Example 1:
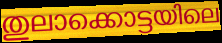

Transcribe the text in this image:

തുലാക്കൊട്ടയിലെ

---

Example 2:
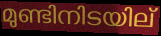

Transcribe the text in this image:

മുണ്ടിനിടയില്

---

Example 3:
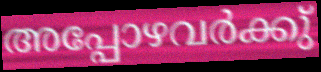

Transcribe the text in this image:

അപ്പോഴവർക്കു്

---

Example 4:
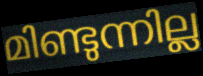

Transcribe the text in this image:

മിണ്ടുന്നില്ല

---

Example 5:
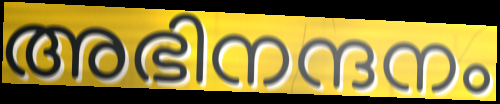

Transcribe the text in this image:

അഭിനന്ദനം